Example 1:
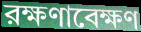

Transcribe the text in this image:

রক্ষণাবেক্ষণ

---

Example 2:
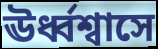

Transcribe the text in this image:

ঊর্ধ্বশ্বাসে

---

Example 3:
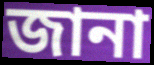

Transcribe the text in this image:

জানা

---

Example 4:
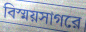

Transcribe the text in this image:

বিস্ময়সাগরে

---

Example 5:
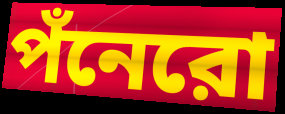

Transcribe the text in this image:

পঁনেরো